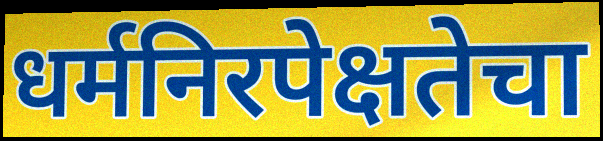
धर्मनिरपेक्षतेचा